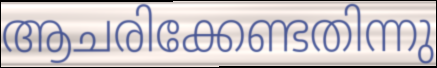
ആചരിക്കേണ്ടതിന്നു